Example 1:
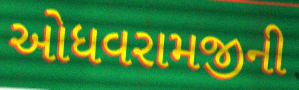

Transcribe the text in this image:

ઓધવરામજીની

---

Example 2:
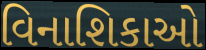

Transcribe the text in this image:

વિનાશિકાઓ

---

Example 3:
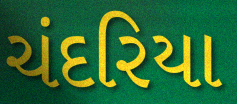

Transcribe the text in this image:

ચંદરિયા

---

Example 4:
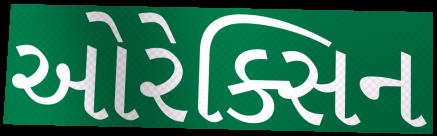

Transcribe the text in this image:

ઓરેક્સિન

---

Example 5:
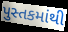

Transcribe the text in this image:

પુસ્તકમાંથી